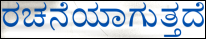
ರಚನೆಯಾಗುತ್ತದೆ